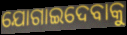
ଯୋଗାଇଦେବାକୁ